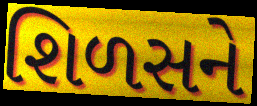
શિળસને